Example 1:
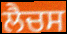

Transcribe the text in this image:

ਲੈਚਸ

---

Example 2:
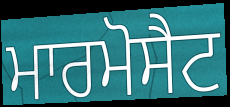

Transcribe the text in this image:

ਮਾਰਮੋਸੈਟ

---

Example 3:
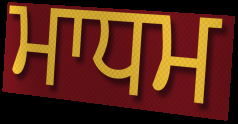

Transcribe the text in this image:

ਮਾਧਮ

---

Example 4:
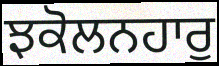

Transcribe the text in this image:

ਝਕੋਲਨਹਾਰੁ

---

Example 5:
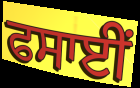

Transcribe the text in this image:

ਫਸਾਈਂ